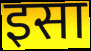
इसा